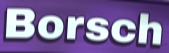
Borsch